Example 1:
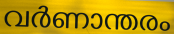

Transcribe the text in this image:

വർണാന്തരം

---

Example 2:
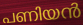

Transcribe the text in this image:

പണിയൻ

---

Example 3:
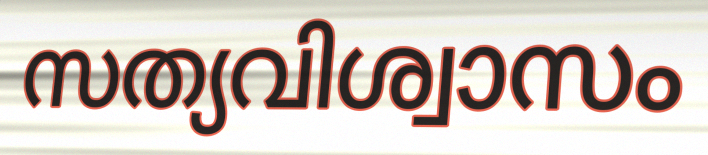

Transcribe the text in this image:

സത്യവിശ്വാസം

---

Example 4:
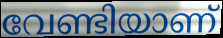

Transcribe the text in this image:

വേണ്ടിയാണ്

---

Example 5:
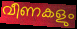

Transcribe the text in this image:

വീണകളും